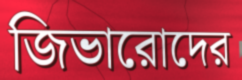
জিভারোদের